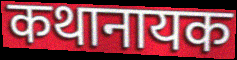
कथानायक